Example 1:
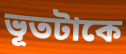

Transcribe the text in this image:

ভূতটাকে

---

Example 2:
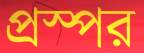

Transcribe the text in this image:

প্রস্পর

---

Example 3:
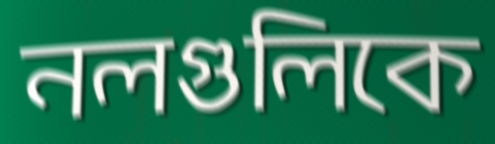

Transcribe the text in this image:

নলগুলিকে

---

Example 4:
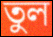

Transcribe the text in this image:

তুল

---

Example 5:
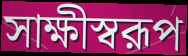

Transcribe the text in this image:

সাক্ষীস্বরূপ